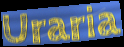
Uraria